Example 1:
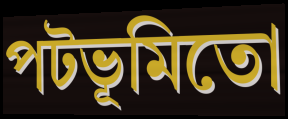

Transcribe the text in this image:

পটভূমিতো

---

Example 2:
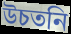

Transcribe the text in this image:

উচতনি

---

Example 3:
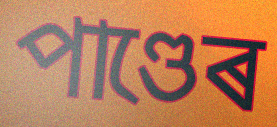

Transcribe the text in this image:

পাণ্ডেৰ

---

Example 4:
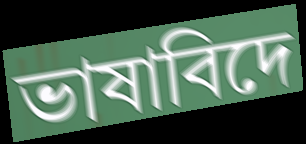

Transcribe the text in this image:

ভাষাবিদে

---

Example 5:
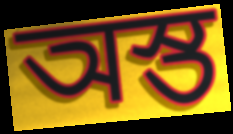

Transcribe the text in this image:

অস্ত